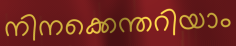
നിനക്കെന്തറിയാം